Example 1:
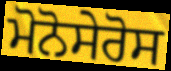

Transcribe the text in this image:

ਮੋਨੋਸੇਰੋਸ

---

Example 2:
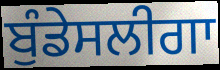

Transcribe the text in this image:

ਬੁੰਡੇਸਲੀਗਾ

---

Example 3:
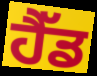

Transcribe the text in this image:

ਹੈੱਡ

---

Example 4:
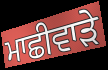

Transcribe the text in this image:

ਮਾਛੀਵਾੜੇ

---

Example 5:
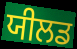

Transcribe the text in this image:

ਯੀਲਡ